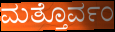
ಮತ್ತೊರ್ವಂ